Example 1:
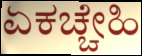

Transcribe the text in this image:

ಏಕಚ್ಚೇಹಿ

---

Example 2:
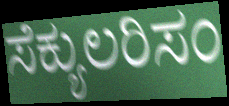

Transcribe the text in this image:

ಸೆಕ್ಯುಲರಿಸಂ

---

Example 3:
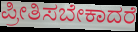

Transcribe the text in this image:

ಪ್ರೀತಿಸಬೇಕಾದರೆ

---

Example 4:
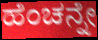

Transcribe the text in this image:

ಹೆಂಚನ್ನೇ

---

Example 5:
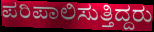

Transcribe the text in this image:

ಪರಿಪಾಲಿಸುತ್ತಿದ್ದರು